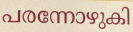
പരന്നോഴുകി